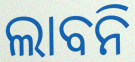
ଲାବନି